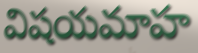
విషయమాహ